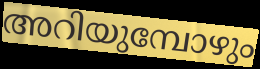
അറിയുമ്പോഴും